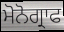
ਮੋਨੋਗ੍ਰਾਫ